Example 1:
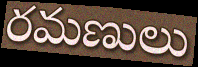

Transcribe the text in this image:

రమణులు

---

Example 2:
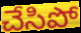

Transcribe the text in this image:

చేసిపో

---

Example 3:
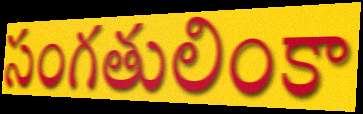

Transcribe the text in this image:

సంగతులింకా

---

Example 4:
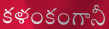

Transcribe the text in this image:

కళంకంగానీ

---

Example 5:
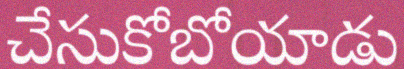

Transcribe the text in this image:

చేసుకోబోయాడు